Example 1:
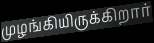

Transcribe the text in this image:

முழங்கியிருக்கிறார்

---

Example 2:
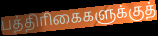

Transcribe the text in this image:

பத்திரிகைகளுக்குத்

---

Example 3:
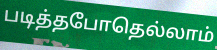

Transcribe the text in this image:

படித்தபோதெல்லாம்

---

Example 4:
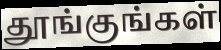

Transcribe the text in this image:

தூங்குங்கள்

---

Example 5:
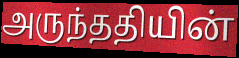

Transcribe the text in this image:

அருந்ததியின்